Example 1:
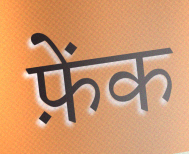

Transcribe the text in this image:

फ़ेंक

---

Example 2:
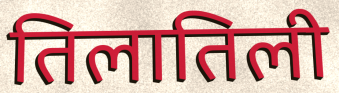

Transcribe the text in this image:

तिलातिली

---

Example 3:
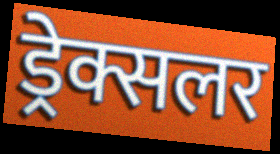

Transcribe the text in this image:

ड्रेक्सलर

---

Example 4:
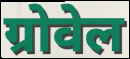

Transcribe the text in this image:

ग्रोवेल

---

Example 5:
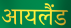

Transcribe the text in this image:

आयलैंड